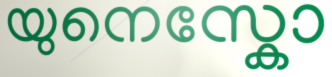
യുനെസ്കോ